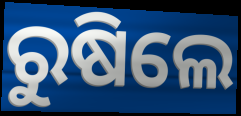
ରୁଷିଲେ